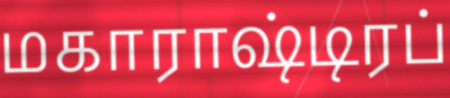
மகாராஷ்டிரப்